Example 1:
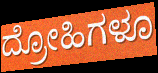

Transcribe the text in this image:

ದ್ರೋಹಿಗಳೂ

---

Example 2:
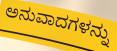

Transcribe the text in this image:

ಅನುವಾದಗಳನ್ನು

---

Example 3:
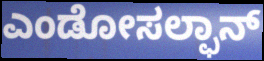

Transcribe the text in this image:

ಎಂಡೋಸಲ್ಫಾನ್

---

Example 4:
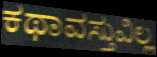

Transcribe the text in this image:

ಕಥಾವಸ್ತುವಿಲ್ಲ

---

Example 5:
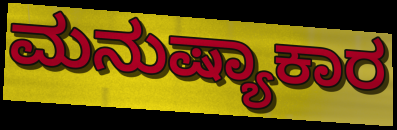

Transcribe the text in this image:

ಮನುಷ್ಯಾಕಾರ